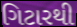
ગિટારથી